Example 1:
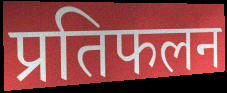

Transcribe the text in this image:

प्रतिफलन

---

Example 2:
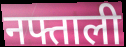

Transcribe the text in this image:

नफ्ताली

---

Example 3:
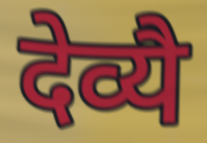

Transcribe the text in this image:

देव्यै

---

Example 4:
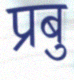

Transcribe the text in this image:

प्रबु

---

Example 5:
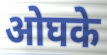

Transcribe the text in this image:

ओघके